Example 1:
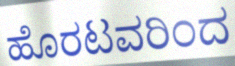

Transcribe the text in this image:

ಹೊರಟವರಿಂದ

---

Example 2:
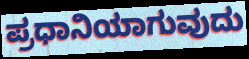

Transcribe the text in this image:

ಪ್ರಧಾನಿಯಾಗುವುದು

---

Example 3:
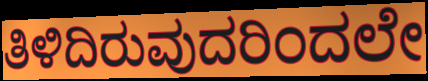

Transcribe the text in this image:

ತಿಳಿದಿರುವುದರಿಂದಲೇ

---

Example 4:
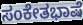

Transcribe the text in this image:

ಸಂಕೇತಭಾಷೆ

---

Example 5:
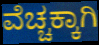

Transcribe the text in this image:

ವೆಚ್ಚಕ್ಕಾಗಿ